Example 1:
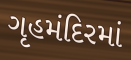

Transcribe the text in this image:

ગૃહમંદિરમાં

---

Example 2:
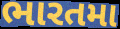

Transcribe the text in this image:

ભારતમા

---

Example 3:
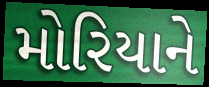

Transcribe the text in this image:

મોરિયાને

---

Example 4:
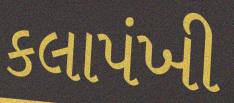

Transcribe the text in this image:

કલાપંખી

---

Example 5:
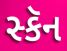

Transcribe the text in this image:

સ્કૅન